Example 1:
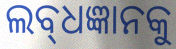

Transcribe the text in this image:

ଲବ୍‌ଧଜ୍ଞାନକୁ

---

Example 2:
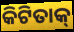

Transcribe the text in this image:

କିଟିତାକ୍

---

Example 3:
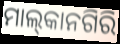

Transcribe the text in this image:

ମାଲ୍‌କାନଗିରି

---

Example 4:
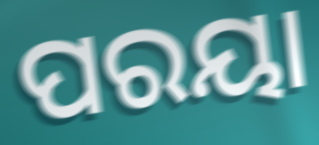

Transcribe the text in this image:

ପରୟା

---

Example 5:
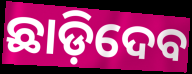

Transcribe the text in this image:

ଛାଡ଼ିଦେବ